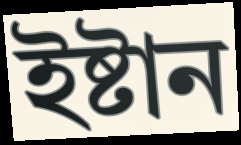
ইষ্টান